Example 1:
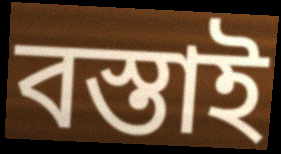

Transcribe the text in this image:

বস্তাই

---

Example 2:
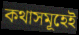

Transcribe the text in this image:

কথাসমূহেই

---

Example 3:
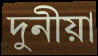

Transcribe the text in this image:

দুনীয়া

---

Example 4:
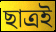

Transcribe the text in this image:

ছাত্ৰই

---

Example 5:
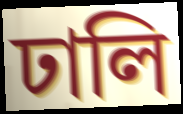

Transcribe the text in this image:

ঢালি